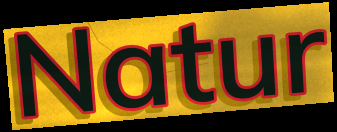
Natur